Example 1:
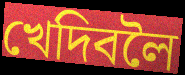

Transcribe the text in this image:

খেদিবলৈ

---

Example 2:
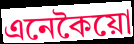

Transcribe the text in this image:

এনেকৈয়ো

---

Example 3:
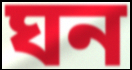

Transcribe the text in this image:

ঘন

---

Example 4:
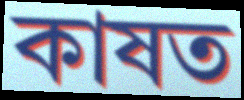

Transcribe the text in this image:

কাষত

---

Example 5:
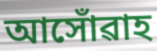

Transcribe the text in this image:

আসোঁৱাহ